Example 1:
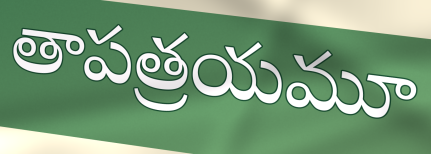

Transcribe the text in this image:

తాపత్రయమూ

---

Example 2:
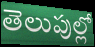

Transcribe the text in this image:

తెలుపుల్లో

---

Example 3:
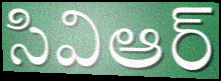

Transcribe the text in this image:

సివిఆర్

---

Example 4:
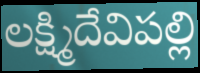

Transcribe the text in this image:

లక్ష్మిదేవిపల్లి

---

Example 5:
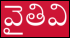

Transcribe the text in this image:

వైతివి